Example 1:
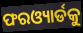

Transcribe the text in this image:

ଫରଓ୍ୟାର୍ଡକୁ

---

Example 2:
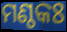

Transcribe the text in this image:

ମଣ୍ଠକଃ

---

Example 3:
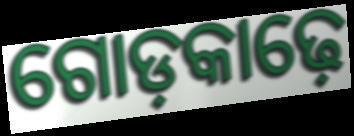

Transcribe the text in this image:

ଗୋଡ଼କାଢ଼େ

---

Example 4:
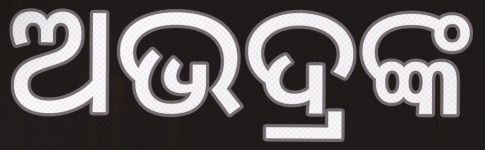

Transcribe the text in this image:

ଅଭଦ୍ରଙ୍କ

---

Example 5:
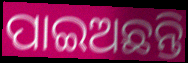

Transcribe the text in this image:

ପାଇଅଛନ୍ତି